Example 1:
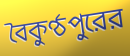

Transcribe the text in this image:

বৈকুণ্ঠপুরের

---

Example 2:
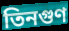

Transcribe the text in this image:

তিনগুণ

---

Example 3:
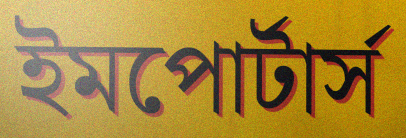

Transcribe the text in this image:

ইমপোর্টার্স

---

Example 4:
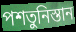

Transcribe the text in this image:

পশতুনিস্তান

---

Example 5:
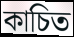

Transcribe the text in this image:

কাচিত